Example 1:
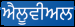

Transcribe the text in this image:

ਐਲੂਵੀਅਲ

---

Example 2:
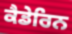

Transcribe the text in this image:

ਕੈਡੇਰਿਨ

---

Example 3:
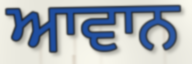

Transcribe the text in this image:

ਆਵਾਨ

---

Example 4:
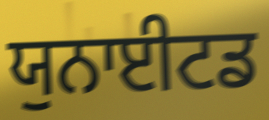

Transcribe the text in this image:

ਯੁਨਾਈਟਡ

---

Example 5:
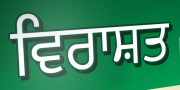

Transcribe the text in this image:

ਵਿਰਾਸ਼ਤ